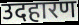
उदहारण